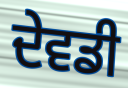
ਦੇਵਡੀ